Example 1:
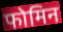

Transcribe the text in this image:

फोमिन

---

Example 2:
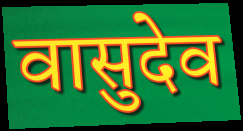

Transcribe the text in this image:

वासुदेव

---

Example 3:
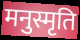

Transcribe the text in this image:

मनुस्मृति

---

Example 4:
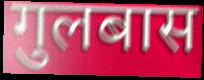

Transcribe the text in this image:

गुलबास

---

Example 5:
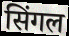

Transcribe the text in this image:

सिंगल